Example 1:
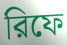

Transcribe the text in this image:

রিফে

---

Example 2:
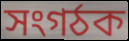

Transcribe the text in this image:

সংগঠক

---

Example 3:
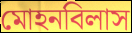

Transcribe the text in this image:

মোহনবিলাস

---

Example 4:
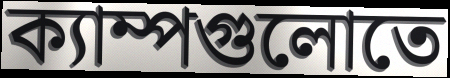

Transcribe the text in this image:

ক্যাম্পগুলোতে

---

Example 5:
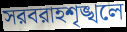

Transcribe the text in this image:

সরবরাহশৃঙ্খলে